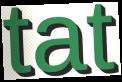
tat